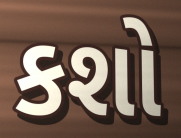
કશો